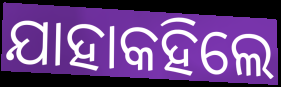
ଯାହାକହିଲେ